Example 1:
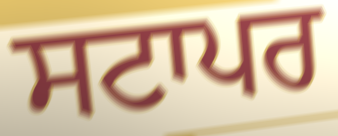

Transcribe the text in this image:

ਸਟਾਪਰ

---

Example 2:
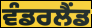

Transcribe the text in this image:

ਵੰਡਰਲੈਂਡ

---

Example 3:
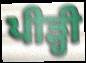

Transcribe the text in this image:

ਪੀੜ੍ਹੀ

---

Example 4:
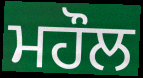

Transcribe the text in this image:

ਮਹੌਲ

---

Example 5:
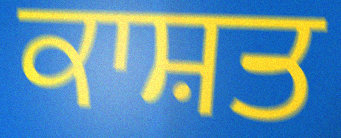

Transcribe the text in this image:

ਕਾਸ਼ਤ